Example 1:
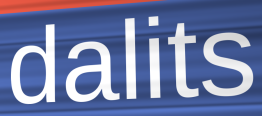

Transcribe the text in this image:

dalits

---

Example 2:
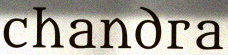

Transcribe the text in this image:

chandra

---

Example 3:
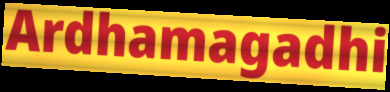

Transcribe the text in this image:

Ardhamagadhi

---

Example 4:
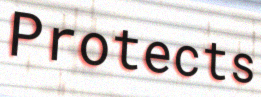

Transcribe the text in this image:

Protects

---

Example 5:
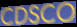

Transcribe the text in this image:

CDSCO